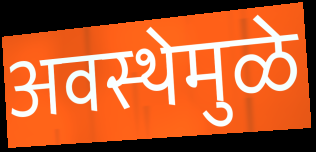
अवस्थेमुळे